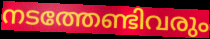
നടത്തേണ്ടിവരും